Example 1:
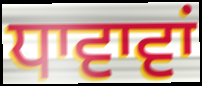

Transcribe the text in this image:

ਧਾਵਾਵਾਂ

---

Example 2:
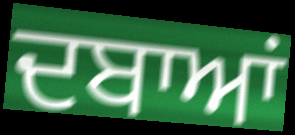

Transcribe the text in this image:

ਦਬਾਆਂ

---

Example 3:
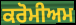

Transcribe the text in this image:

ਕਰੋਮੀਅਮ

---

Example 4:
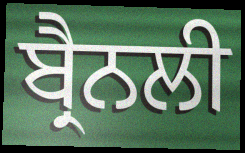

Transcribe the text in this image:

ਬ੍ਰੈਨਲੀ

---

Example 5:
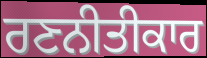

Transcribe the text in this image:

ਰਣਨੀਤੀਕਾਰ